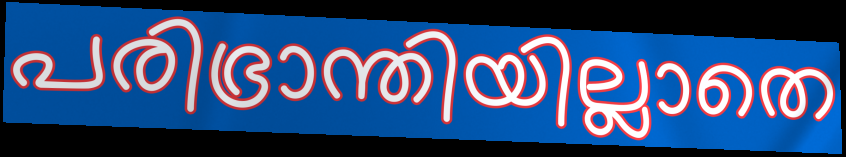
പരിഭ്രാന്തിയില്ലാതെ